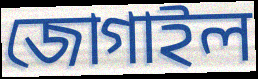
জোগাইল